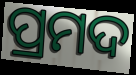
ପ୍ରମଦ